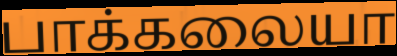
பாக்கலையா